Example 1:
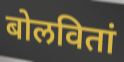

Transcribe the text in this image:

बोलवितां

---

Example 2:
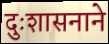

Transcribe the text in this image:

दुःशासनाने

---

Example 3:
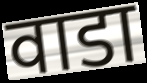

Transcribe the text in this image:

वाडा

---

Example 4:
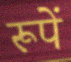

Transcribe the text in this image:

रूपें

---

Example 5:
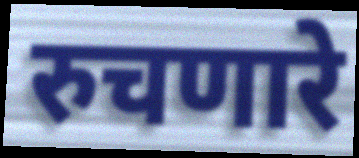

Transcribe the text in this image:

रुचणारे